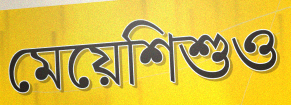
মেয়েশিশুও